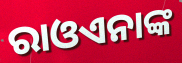
ରାଓଏନାଙ୍କ